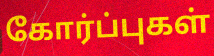
கோர்ப்புகள்